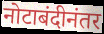
नोटाबंदीनंतर